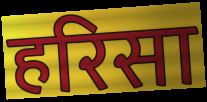
हरिसा